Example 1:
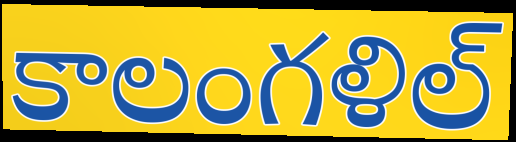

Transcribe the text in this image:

కాలంగళిల్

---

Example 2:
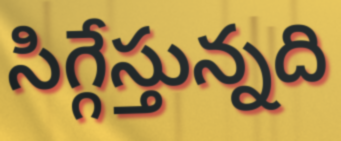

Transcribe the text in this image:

సిగ్గేస్తున్నది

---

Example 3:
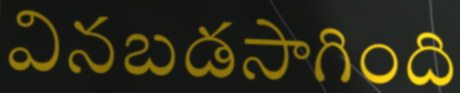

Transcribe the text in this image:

వినబడసాగింది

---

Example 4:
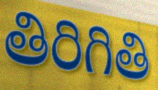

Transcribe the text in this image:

తిరిగితి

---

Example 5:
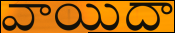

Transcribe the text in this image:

వాయిదా